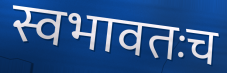
स्वभावतःच